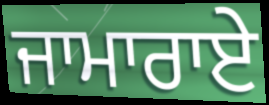
ਜਾਮਾਰਾਏ